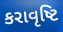
કરાવૃષ્ટિ